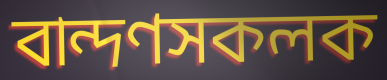
বান্দণসকলক